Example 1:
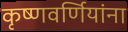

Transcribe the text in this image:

कृष्णवर्णियांना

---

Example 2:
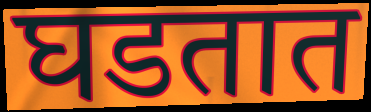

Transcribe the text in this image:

घडतात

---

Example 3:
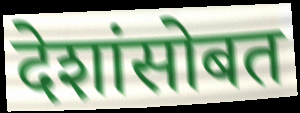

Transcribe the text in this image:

देशांसोबत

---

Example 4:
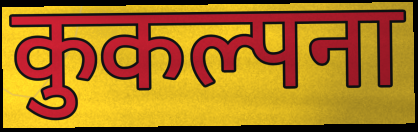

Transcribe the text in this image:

कुकल्पना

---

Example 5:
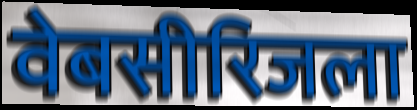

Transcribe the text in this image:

वेबसीरिजला